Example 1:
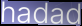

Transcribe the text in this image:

hadad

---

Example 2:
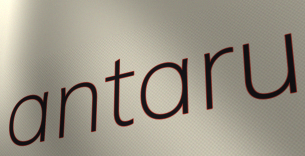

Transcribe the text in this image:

antaru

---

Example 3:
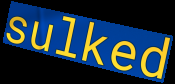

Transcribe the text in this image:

sulked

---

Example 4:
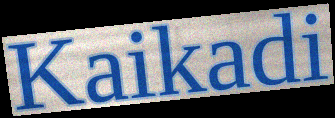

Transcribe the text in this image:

Kaikadi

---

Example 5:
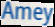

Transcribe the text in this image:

Amey